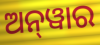
ଅନ୍‌ୱାର